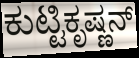
ಕುಟ್ಟಿಕೃಷ್ಣನ್